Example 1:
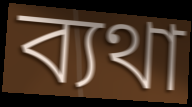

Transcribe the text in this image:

ব্যথা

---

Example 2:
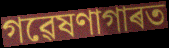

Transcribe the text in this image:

গৱেষণাগাৰত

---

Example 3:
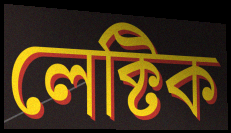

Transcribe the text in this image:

লেক্টিক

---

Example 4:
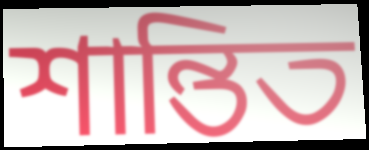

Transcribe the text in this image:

শান্তিত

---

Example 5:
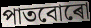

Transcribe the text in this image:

পাতবোৰো